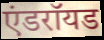
एंडरॉयड